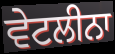
ਵੇਟਲੀਨਾ